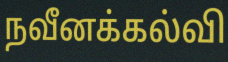
நவீனக்கல்வி